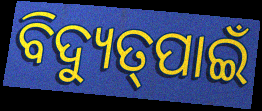
ବିଦ୍ୟୁତ୍‌ପାଇଁ